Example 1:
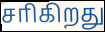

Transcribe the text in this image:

சரிகிறது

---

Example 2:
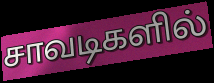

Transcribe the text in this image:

சாவடிகளில்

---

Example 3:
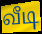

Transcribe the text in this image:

வீடி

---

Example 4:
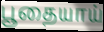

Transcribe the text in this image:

பூதையாய்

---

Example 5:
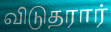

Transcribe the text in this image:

விடுதரார்